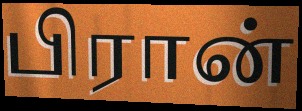
பிரான்